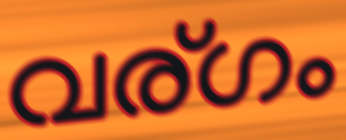
വര്ഗം